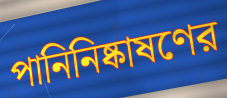
পানিনিষ্কাষণের